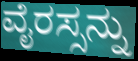
ವೈರಸ್ಸನ್ನು